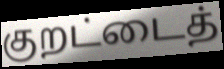
குறட்டைத்